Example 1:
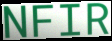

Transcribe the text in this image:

NFIR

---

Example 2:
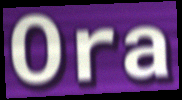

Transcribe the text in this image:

Ora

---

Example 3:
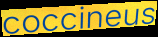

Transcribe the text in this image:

coccineus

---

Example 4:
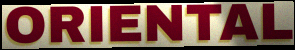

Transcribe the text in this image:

ORIENTAL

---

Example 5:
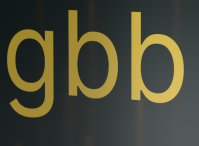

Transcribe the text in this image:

gbb